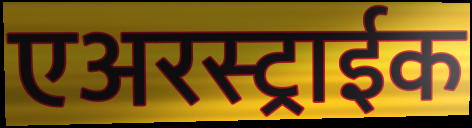
एअरस्ट्राईक